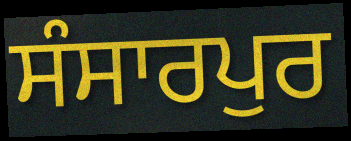
ਸੰਸਾਰਪੁਰ